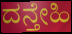
ದನ್ತೇಹಿ